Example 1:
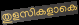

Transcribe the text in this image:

തുളസികളാകെ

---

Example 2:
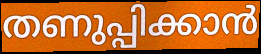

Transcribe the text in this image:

തണുപ്പിക്കാൻ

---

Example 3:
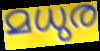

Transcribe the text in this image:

മധുര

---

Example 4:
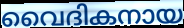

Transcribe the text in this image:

വൈദികനായ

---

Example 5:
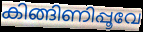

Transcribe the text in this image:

കിങ്ങിണിപ്പൂവേ